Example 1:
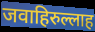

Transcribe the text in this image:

जवाहिरुल्लाह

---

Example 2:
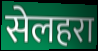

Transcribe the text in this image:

सेलहरा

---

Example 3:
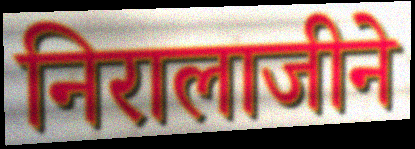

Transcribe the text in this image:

निरालाजीने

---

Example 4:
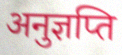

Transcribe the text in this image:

अनुज्ञप्ति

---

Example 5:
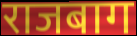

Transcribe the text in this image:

राजबाग